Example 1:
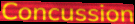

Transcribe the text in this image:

Concussion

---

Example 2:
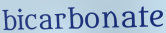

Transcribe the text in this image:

bicarbonate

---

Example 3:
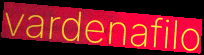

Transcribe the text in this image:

vardenafilo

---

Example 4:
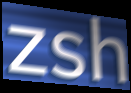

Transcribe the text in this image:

zsh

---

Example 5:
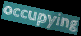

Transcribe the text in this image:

occupying